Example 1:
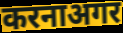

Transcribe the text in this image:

करनाअगर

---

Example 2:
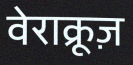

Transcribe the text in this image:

वेराक्रूज़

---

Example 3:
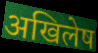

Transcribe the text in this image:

अखिलेष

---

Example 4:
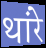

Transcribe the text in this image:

थांरे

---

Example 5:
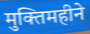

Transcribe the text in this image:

मुक्तिमहीने